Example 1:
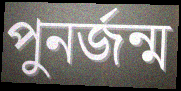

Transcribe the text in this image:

পুনর্জন্ম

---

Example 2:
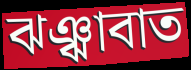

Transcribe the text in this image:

ঝঞ্ঝাবাত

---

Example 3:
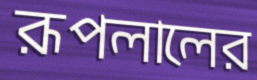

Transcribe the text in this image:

রূপলালের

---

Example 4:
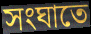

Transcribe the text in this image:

সংঘাতে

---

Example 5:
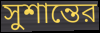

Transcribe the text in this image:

সুশান্তের